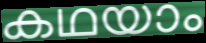
കഥയാം